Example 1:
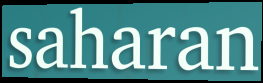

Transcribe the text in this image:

saharan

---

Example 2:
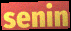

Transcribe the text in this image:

senin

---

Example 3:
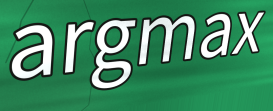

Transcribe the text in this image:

argmax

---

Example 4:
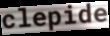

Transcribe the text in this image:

clepide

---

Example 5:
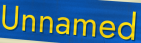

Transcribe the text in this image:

Unnamed